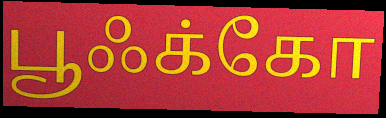
பூஃக்கோ